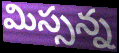
మిస్సన్న